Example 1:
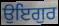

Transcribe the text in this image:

ਉਇਗੁਰ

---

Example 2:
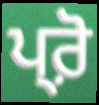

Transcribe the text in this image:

ਪ੍ਰ਼ੋ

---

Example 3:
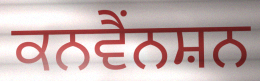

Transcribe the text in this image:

ਕਨਵੈਂਨਸ਼ਨ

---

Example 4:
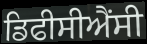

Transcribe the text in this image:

ਡਿਫੀਸੀਐਂਸੀ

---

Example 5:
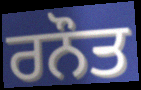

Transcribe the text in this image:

ਰਨੌਤ